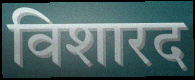
विशारद